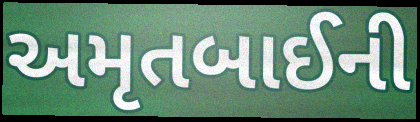
અમૃતબાઈની